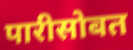
पारीसोबत